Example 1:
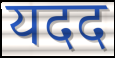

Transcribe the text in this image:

यदद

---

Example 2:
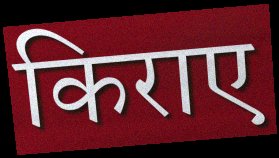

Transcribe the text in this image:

किराए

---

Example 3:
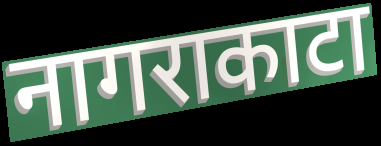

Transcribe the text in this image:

नागराकाटा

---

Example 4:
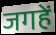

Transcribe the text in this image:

जगहें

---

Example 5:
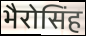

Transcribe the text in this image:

भैरोसिंह